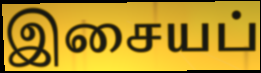
இசையப்